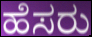
ಹೆಸರು